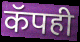
कॅपही